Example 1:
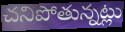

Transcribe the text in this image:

చనిపోతున్నట్లు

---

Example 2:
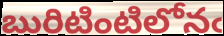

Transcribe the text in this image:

బురిటింటిలోనఁ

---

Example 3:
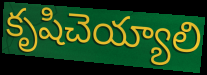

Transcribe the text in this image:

కృషిచెయ్యాలి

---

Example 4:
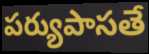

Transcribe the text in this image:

పర్యుపాసతే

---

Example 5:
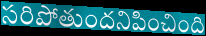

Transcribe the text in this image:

సరిపోతుందనిపించింది